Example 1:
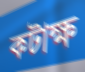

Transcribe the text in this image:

কটাক্ষ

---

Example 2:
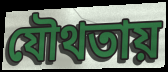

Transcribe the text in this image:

যৌথতায়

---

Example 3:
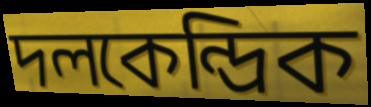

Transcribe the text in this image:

দলকেন্দ্রিক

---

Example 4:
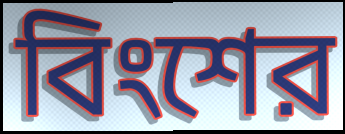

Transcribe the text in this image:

বিংশের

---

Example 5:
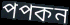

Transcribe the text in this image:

পপকন